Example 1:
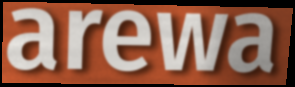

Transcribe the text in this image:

arewa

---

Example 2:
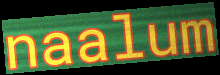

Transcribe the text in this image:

naalum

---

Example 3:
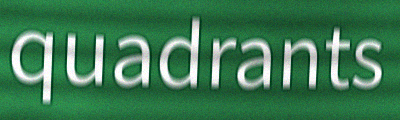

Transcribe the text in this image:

quadrants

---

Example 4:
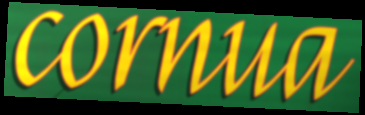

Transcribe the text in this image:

cornua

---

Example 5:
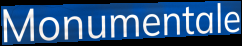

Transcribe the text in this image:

Monumentale